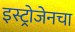
इस्ट्रोजेनचा